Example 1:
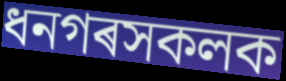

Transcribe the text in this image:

ধনগৰসকলক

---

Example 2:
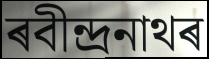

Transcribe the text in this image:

ৰবীন্দ্ৰনাথৰ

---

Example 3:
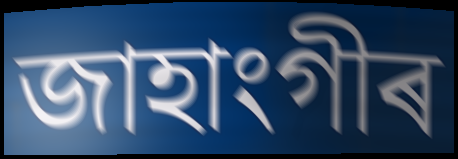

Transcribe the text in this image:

জাহাংগীৰ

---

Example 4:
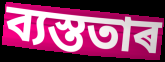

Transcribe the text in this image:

ব্যস্ততাৰ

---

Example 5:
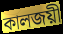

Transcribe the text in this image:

কালজয়ী